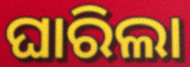
ଘାରିଲା